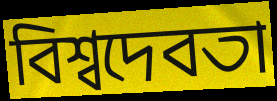
বিশ্বদেবতা